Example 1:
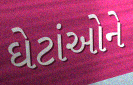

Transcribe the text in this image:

ઘેટાંઓને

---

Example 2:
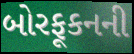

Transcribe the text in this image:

બોરફૂકનની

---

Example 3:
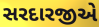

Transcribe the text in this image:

સરદારજીએ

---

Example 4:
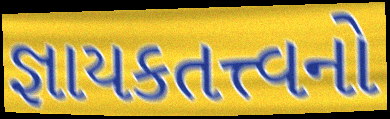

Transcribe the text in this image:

જ્ઞાયકતત્ત્વનો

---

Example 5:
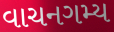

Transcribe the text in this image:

વાચનગમ્ય